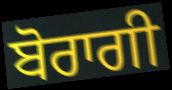
ਬੋਰਾਗੀ